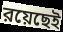
রয়েছেই